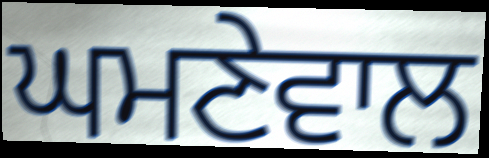
ਘਮਣੇਵਾਲ